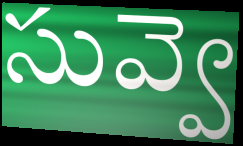
సువ్వె